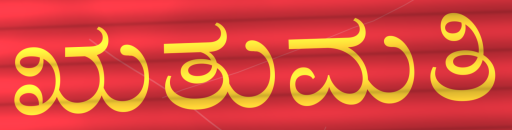
ಋತುಮತಿ